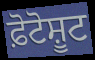
ਫ਼ੋਟੋਸ਼ੂਟ